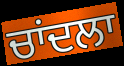
ਚਾਂਦਲਾ